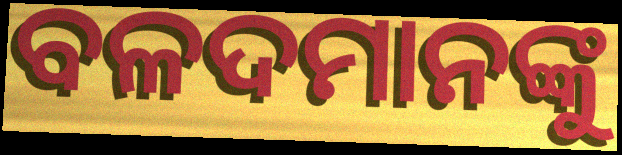
ବଳଦମାନଙ୍କୁ